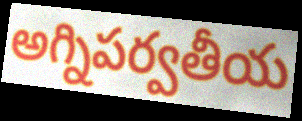
అగ్నిపర్వతీయ